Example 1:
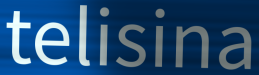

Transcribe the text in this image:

telisina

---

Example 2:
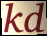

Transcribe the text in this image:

kd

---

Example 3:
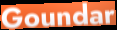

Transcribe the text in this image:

Goundar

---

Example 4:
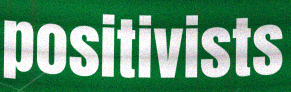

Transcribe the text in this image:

positivists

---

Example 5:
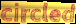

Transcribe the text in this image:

circled